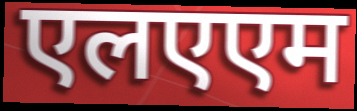
एलएएम